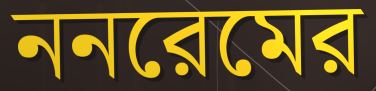
ননরেমের